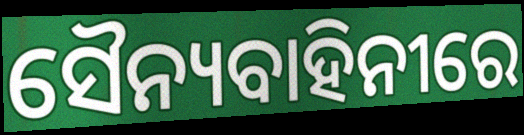
ସୈନ୍ୟବାହିନୀରେ